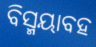
ବିସ୍ମୟାବହ